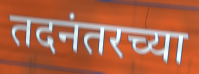
तदनंतरच्या